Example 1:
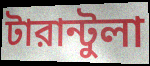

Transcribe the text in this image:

টারান্টুলা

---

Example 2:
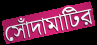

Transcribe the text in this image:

সোঁদামাটির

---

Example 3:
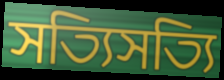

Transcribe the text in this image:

সত্যিসত্যি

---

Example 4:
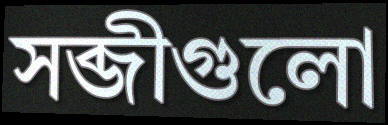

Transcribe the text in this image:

সব্জীগুলো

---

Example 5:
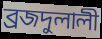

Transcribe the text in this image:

ব্রজদুলালী